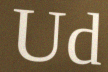
Ud